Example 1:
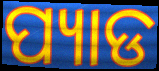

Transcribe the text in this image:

ପ୍ୟାଡ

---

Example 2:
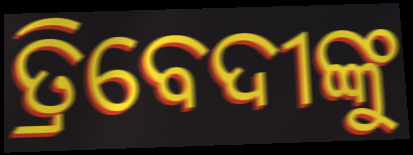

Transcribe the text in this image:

ତ୍ରିବେଦୀଙ୍କୁ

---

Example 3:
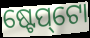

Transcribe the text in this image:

ଷ୍ଟେପ୍‌ଟୋ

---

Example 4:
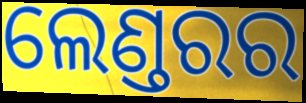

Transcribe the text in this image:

ଲେଣ୍ଡରର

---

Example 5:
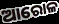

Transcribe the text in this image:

ଆରୋଳ